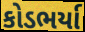
કોડભર્યા